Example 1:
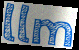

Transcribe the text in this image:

llm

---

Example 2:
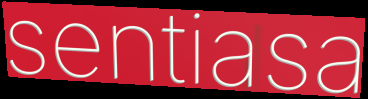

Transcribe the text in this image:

sentiasa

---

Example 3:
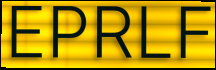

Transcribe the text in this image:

EPRLF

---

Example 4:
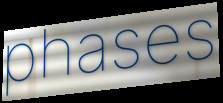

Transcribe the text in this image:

phases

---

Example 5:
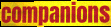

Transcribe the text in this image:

companions